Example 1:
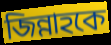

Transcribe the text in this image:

জিন্নাহকে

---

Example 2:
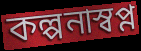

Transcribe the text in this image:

কল্পনাস্বপ্ন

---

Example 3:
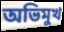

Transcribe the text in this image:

অভিমুখ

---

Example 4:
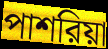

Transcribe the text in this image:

পাশরিয়া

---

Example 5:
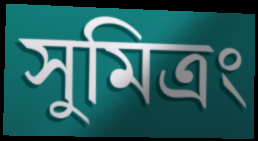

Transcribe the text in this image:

সুমিত্রং